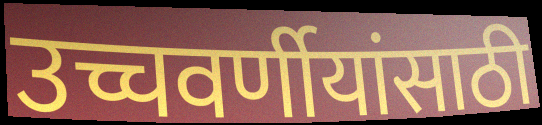
उच्चवर्णीयांसाठी